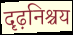
दृढ़निश्चय